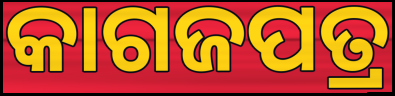
କାଗଜପତ୍ର